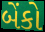
બેંકો